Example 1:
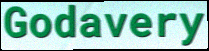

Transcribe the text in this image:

Godavery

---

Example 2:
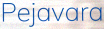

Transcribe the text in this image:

Pejavara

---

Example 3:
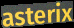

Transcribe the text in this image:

asterix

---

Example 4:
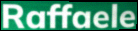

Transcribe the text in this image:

Raffaele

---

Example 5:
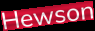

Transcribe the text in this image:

Hewson